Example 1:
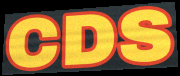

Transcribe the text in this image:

CDS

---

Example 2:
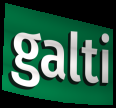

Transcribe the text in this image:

galti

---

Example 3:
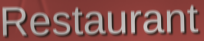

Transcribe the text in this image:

Restaurant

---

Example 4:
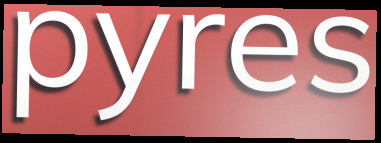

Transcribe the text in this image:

pyres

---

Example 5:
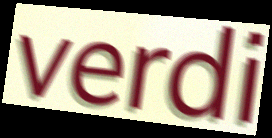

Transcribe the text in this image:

verdi